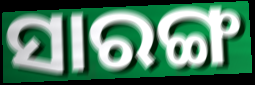
ସାରଙ୍ଗ